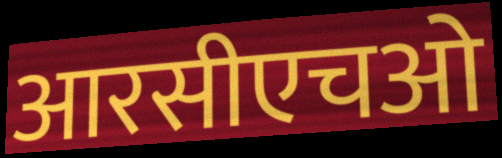
आरसीएचओ